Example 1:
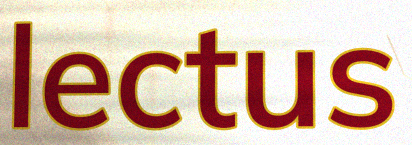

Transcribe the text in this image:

lectus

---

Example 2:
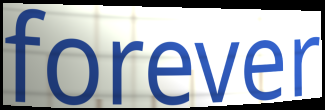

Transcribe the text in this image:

forever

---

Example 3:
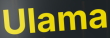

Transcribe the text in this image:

Ulama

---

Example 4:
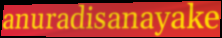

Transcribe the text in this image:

anuradisanayake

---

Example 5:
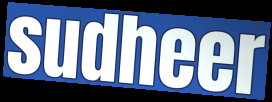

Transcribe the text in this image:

sudheer